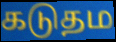
கடுதம